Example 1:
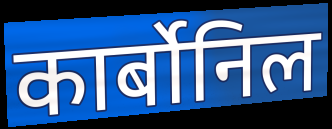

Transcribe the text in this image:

कार्बोनिल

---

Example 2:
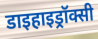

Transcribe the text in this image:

डाइहाइड्रॉक्सी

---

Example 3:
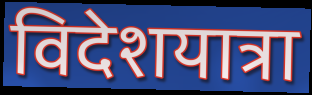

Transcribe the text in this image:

विदेशयात्रा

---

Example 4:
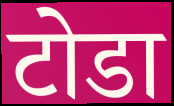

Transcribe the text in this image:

टोडा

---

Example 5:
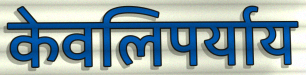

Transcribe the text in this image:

केवलिपर्याय